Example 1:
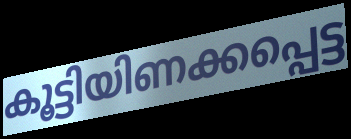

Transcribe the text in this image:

കൂട്ടിയിണക്കപ്പെട്ട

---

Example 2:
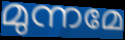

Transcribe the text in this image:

മുന്നമേ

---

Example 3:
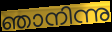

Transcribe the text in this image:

ഞാനിന്നു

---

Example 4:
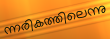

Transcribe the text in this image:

ന്നരികത്തിലെന്നു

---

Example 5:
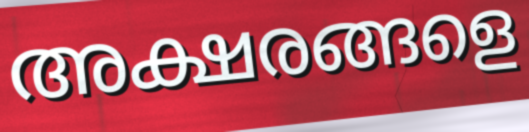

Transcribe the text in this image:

അക്ഷരങ്ങളെ